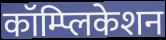
कॉम्प्लिकेशन